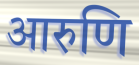
आरुणि